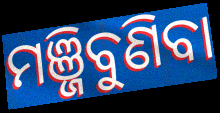
ମଞ୍ଜିବୁଣିବା